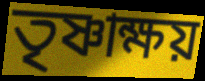
তৃষ্ণাক্ষয়